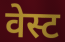
वेस्ट